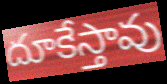
దూకేస్తావు